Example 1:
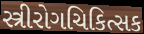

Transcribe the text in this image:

સ્ત્રીરોગચિકિત્સક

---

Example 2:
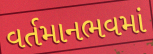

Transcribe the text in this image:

વર્તમાનભવમાં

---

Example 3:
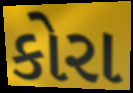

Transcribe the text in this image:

કોરા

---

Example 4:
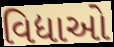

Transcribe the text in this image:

વિદ્યાઓ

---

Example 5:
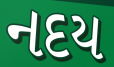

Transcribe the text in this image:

નદય